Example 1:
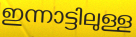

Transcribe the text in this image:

ഇന്നാട്ടിലുള്ള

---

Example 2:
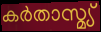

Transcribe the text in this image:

കർതാസ്മ്യ്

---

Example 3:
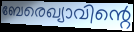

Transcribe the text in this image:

ബേരെഖ്യാവിന്റെ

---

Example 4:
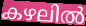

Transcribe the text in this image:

കഴലിൽ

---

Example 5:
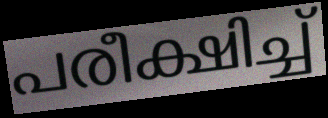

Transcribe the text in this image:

പരീക്ഷിച്ച്